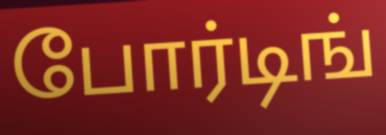
போர்டிங்